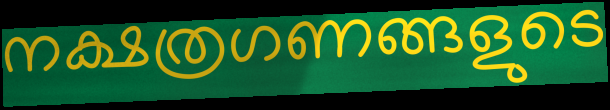
നക്ഷത്രഗണങ്ങളുടെ